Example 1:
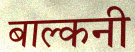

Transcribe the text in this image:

बाल्कनी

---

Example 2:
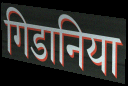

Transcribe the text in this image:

गिडानिया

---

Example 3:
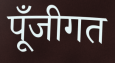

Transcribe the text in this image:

पूँजीगत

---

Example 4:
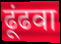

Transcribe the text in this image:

ढूंढवा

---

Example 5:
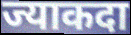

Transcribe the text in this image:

ज्याकदा